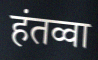
हंतव्वा